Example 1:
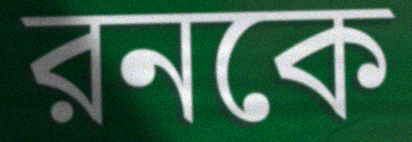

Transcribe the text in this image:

রনকে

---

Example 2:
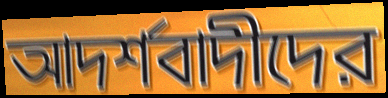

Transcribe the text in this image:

আদর্শবাদীদের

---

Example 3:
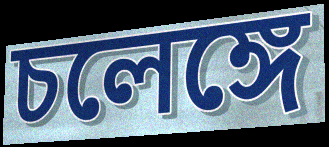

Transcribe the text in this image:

চলেঙ্গে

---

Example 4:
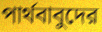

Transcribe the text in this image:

পার্থবাবুদের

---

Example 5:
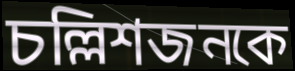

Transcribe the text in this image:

চল্লিশজনকে